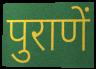
पुराणें